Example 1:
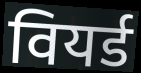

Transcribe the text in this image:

वियर्ड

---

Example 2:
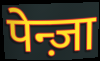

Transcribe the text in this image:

पेन्ज़ा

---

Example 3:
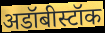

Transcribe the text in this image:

अडॉबीस्टॉक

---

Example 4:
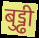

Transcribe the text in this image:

बुड्ढी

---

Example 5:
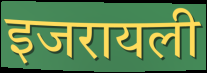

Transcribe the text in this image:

इजरायली